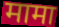
मामा